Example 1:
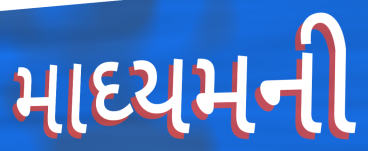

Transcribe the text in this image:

માઘ્યમની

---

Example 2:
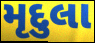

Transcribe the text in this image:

મૃદુલા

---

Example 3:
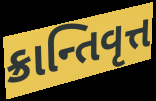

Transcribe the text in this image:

ક્રાન્તિવૃત્ત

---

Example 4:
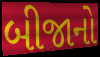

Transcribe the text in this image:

બીજાનો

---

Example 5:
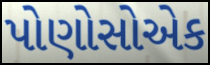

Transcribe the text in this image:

પોણોસોએક